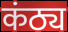
कंठ्य